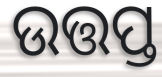
ଉତ୍ତପ୍ତ